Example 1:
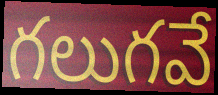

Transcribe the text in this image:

గలుగవే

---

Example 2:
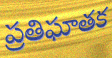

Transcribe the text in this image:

ప్రతిఘాతక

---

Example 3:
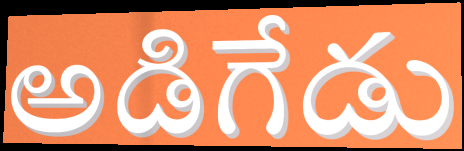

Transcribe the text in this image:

అడిగేడు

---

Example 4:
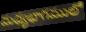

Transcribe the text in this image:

మధ్యభాగములో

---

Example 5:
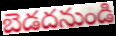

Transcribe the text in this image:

బెడదనుండి